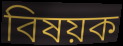
বিষয়ক